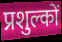
प्रशुल्कों